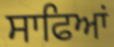
ਸਾਫਿਆਂ